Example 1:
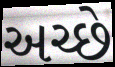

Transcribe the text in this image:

અચ્છે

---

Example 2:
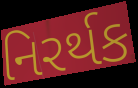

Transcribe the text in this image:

નિરર્થક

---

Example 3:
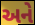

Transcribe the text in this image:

અને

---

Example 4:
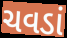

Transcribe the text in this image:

ચવડાં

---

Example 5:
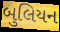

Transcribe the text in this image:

બુલિયન